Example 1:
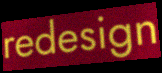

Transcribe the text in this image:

redesign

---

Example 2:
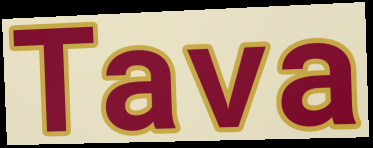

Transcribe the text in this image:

Tava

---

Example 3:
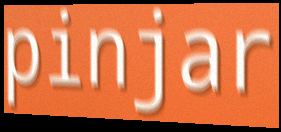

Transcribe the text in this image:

pinjar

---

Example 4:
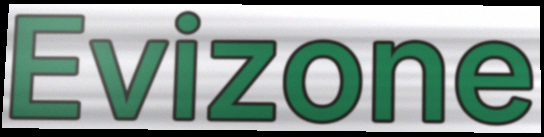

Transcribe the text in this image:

Evizone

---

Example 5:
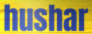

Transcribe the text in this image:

hushar